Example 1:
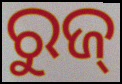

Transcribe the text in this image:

ରୁଜ୍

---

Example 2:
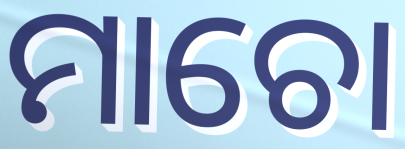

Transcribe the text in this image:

ମାଚୋ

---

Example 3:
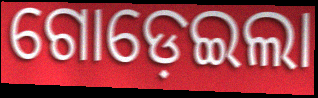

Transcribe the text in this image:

ଗୋଡ଼େଇଲା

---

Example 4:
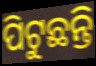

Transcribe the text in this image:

ପିଟୁଛନ୍ତି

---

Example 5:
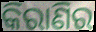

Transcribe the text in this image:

କିରାଣିର